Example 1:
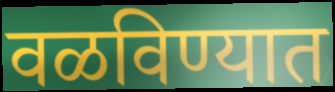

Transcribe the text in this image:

वळविण्यात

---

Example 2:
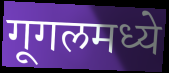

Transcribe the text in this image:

गूगलमध्ये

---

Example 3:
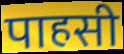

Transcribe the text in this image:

पाहसी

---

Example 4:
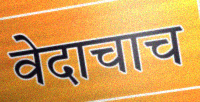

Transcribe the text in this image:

वेदाचाच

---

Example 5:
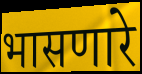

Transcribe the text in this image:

भासणारे